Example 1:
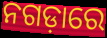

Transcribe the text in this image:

ନଗଡ଼ାରେ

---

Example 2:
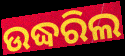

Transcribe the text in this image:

ଉଦ୍ଧରିଲ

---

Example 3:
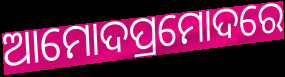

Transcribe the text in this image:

ଆମୋଦପ୍ରମୋଦରେ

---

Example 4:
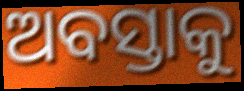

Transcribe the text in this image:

ଅବସ୍ତାକୁ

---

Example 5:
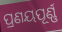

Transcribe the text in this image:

ପ୍ରଣୟପୂର୍ଣ୍ଣ